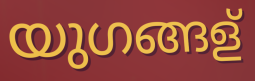
യുഗങ്ങള്